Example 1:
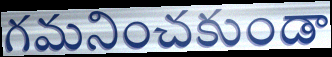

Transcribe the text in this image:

గమనించకుండా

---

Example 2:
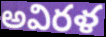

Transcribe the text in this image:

అవిరళ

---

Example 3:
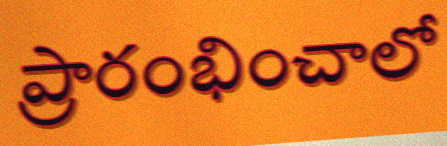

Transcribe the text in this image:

ప్రారంభించాలో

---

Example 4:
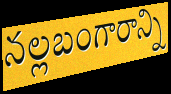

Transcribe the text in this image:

నల్లబంగారాన్ని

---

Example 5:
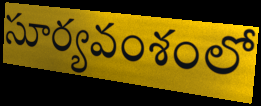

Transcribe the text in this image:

సూర్యవంశంలో